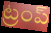
ట్రంప్